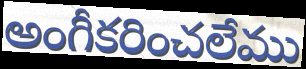
అంగీకరించలేము